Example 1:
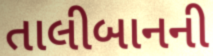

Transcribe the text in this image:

તાલીબાનની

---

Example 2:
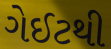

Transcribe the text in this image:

ગેઈટથી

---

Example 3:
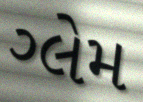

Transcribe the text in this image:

ગ્લેમ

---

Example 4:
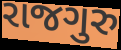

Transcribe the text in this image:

રાજગુરુ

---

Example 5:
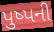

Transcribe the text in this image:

પુષ્પની